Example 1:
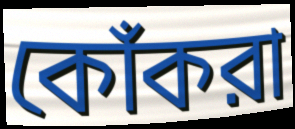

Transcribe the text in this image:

কোঁকরা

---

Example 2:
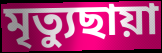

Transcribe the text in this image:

মৃত্যুছায়া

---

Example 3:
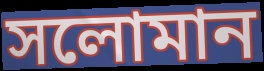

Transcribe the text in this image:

সলোমান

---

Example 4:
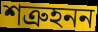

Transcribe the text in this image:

শত্রুহনন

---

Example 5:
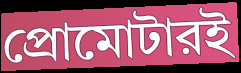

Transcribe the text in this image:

প্রোমোটারই